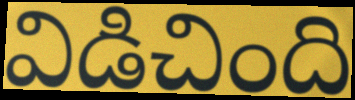
విడిచింది